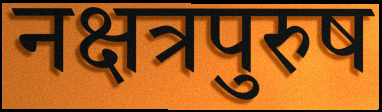
नक्षत्रपुरुष